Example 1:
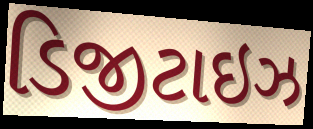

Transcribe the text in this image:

ડિજીટાઇઝ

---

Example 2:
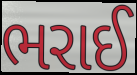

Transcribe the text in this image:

ભરાઈ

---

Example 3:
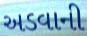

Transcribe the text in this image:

અડવાની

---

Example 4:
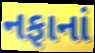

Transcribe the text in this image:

નફાનાં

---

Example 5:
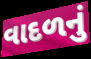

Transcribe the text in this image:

વાદળનું